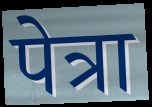
पेत्रा